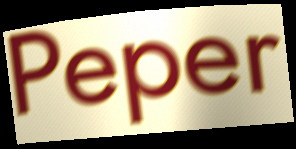
Peper